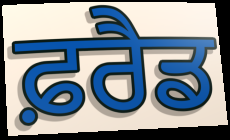
ਫ਼ਰੈਡ